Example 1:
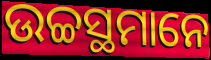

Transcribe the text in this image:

ଉଚ୍ଚସ୍ଥମାନେ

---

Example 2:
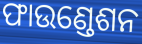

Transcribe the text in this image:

ଫାଉଣ୍ଡେଶନ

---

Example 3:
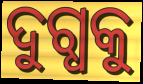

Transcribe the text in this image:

ଦୁଗ୍ଧକୁ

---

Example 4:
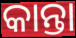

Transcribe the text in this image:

କାନ୍ତା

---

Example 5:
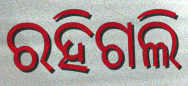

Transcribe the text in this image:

ରହିଗଲି